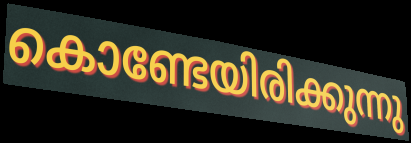
കൊണ്ടേയിരിക്കുന്നു